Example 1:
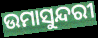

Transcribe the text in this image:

ଉମାସୁନ୍ଦରୀ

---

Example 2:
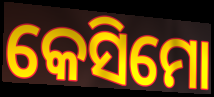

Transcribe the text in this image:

କେସିମୋ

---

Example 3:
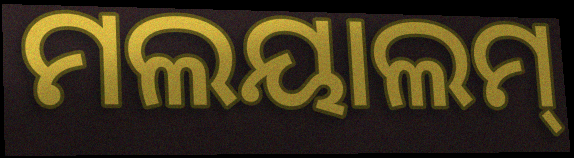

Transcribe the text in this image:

ମଲୟାଲମ୍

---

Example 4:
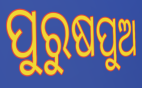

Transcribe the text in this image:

ପୁରୁଷପୁଅ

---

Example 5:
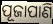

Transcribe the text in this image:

ପୂଜାପାଣି